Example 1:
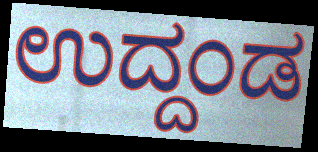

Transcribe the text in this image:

ಉದ್ದಂಡ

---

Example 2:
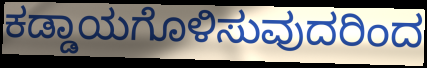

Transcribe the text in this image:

ಕಡ್ಡಾಯಗೊಳಿಸುವುದರಿಂದ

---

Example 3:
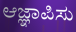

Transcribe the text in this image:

ಆಜ್ಞಾಪಿಸು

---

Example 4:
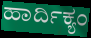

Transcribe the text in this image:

ಹಾರ್ದಿಕ್ಯಂ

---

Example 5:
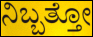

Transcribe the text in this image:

ನಿಬ್ಬತ್ತೋ